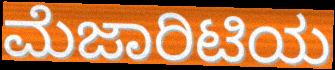
ಮೆಜಾರಿಟಿಯ